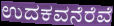
ಉದಕವನೆರೆವೆ